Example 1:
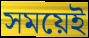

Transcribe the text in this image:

সময়েই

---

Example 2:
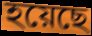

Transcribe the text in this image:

হয়েছে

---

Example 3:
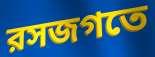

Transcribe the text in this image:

রসজগতে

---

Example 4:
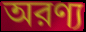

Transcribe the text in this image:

অরণ্য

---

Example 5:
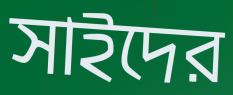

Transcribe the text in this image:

সাইদের